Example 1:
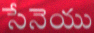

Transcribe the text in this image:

సేనెయు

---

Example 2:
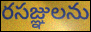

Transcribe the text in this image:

రసజ్ఞులను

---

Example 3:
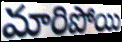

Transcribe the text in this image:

మారిపోయి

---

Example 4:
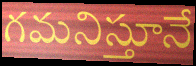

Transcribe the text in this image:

గమనిస్తూనే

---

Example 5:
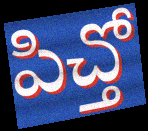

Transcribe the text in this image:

పిచ్తో